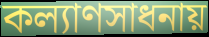
কল্যাণসাধনায়